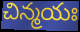
చిన్మయః